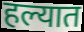
हल्यात